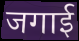
जगाई